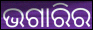
ଭଗାରିର